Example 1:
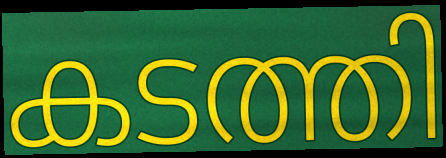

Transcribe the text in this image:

കടത്തി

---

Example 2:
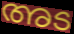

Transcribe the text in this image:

അട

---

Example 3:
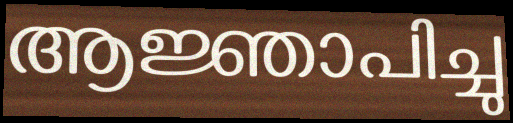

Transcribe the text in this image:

ആജ്ഞാപിച്ചു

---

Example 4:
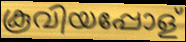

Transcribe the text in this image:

കൂവിയപ്പോള്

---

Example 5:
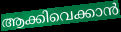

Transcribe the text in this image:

ആക്കിവെക്കാൻ